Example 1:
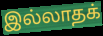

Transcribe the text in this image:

இல்லாதக்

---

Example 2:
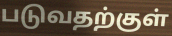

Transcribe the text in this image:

படுவதற்குள்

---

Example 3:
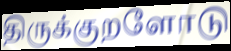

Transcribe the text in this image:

திருக்குறளோடு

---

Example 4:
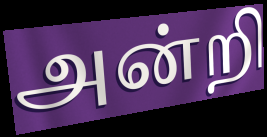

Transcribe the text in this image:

அன்றி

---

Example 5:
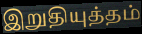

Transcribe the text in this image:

இறுதியுத்தம்